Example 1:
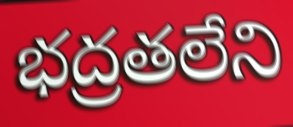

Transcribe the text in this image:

భద్రతలేని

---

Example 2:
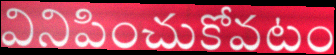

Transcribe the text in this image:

వినిపించుకోవటం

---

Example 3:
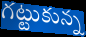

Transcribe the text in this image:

గట్టుకున్న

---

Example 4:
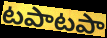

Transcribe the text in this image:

టపాటపా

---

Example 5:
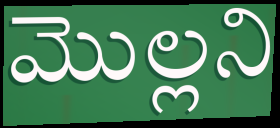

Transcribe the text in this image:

మొల్లని